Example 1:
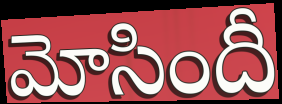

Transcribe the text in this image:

మోసిందీ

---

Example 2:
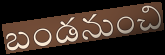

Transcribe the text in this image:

బండనుంచి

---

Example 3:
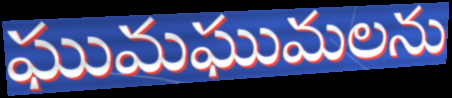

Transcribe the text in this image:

ఘుమఘుమలను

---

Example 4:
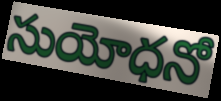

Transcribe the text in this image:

సుయోధనో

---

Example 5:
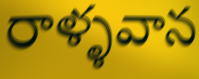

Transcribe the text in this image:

రాళ్ళవాన